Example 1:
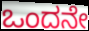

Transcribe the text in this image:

ಒಂದನೇ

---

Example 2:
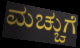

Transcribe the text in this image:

ಮಚ್ಚುಗೆ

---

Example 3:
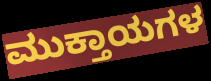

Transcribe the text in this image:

ಮುಕ್ತಾಯಗಳ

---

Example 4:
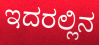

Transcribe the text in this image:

ಇದರಲ್ಲಿನ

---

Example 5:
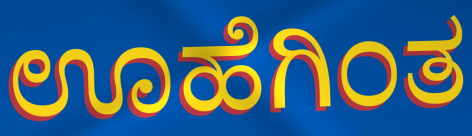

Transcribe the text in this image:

ಊಹೆಗಿಂತ